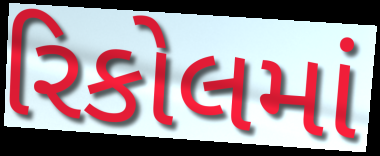
રિકોલમાં